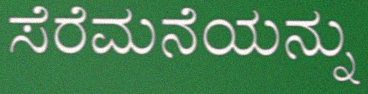
ಸೆರೆಮನೆಯನ್ನು